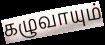
கழுவாயும்